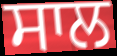
ਸਾਲ